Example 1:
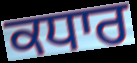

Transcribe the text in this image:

ਕਧਾਰ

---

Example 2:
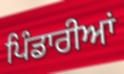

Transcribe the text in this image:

ਪਿੰਡਾਰੀਆਂ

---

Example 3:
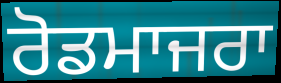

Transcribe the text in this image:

ਰੋਡਮਾਜਰਾ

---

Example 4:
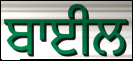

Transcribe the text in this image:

ਬਾਈਲ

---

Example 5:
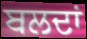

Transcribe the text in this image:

ਬਲਦਾਂ